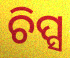
ଚିପ୍ସ